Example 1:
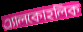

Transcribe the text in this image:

এ্যালকোহলিক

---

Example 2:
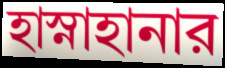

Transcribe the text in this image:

হাস্নাহানার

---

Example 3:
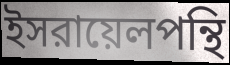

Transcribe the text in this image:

ইসরায়েলপন্থি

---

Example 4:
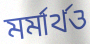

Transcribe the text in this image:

মর্মার্থও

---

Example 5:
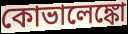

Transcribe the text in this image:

কোভালেঙ্কো